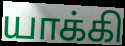
யாக்கி